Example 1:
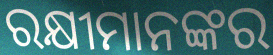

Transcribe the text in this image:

ରକ୍ଷୀମାନଙ୍କର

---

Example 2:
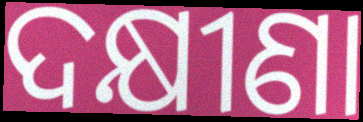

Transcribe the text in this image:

ଦକ୍ଷୀଣା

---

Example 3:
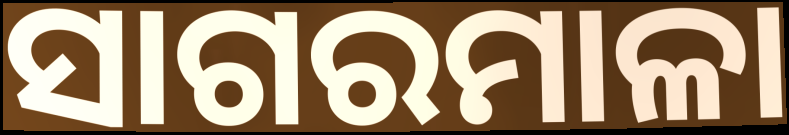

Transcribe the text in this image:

ସାଗରମାଳା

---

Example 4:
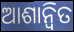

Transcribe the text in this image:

ଆଶାନ୍ବିତ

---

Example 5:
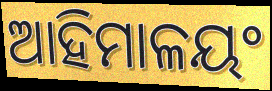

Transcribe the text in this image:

ଆହିମାଳୟଂ